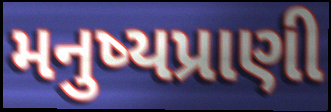
મનુષ્યપ્રાણી